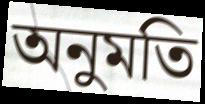
অনুমতি